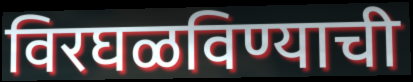
विरघळविण्याची